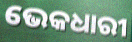
ଭେକଧାରୀ